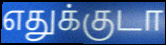
எதுக்குடா